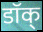
डॉक्